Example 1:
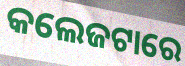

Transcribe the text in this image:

କଲେଜଟାରେ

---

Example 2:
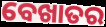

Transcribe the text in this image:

ବେଖାତର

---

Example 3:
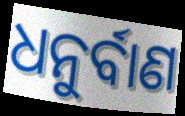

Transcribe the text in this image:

ଧନୁର୍ବାଣ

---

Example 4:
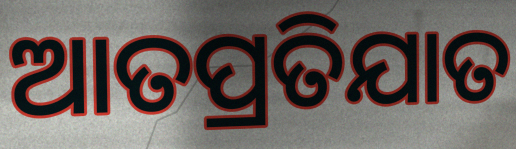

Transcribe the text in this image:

ଆତପ୍ରତିଯାତ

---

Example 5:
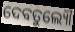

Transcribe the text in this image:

ଦେବତୁଲ୍ୟୌ